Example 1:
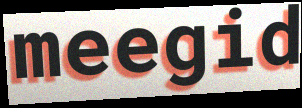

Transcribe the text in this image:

meegid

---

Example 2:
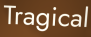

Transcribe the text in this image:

Tragical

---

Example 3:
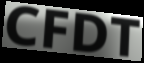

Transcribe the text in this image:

CFDT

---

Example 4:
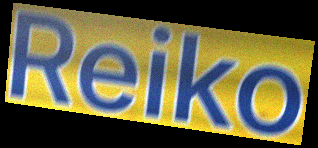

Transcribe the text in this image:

Reiko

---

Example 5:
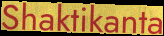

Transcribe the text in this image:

Shaktikanta